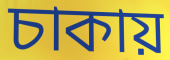
চাকায়